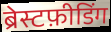
ब्रेस्टफ़ीडिंग